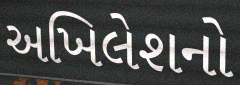
અખિલેશનો